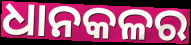
ଧାନକଳର